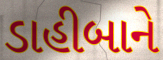
ડાહીબાને